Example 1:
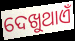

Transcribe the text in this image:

ଦେଖୁଥାଏଁ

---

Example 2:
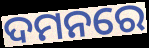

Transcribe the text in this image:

ଦମନରେ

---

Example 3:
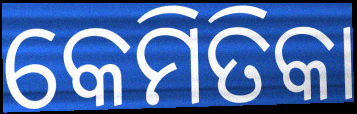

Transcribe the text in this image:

କେମିତିକା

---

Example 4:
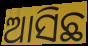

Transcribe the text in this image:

ଆସିଛ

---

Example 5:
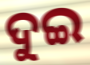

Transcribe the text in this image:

ଦୁଇ